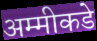
अम्मीकडे